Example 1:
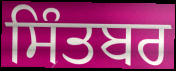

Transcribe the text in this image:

ਸਿੰਤਬਰ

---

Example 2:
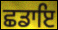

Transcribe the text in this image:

ਛਡਾਇ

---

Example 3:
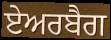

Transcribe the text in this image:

ਏਅਰਬੈਗ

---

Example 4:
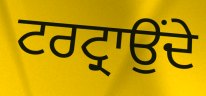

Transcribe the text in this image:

ਟਰਟ੍ਰਾਉਂਦੇ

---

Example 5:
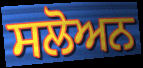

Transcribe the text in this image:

ਸਲੋਅਨ